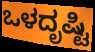
ಒಳದೃಷ್ಟಿ